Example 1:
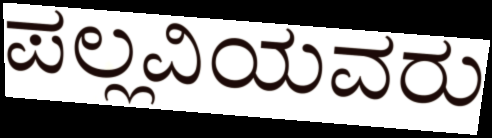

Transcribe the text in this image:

ಪಲ್ಲವಿಯವರು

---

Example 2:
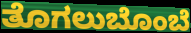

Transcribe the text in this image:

ತೊಗಲುಬೊಂಬೆ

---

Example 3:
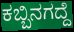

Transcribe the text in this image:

ಕಬ್ಬಿನಗದ್ದೆ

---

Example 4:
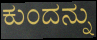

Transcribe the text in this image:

ಕುಂದನ್ನು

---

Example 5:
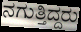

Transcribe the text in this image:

ನಗುತ್ತಿದ್ದರು